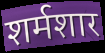
शर्मशार